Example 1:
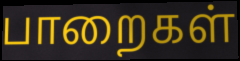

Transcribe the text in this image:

பாறைகள்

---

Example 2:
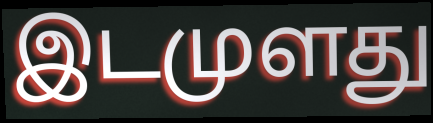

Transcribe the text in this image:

இடமுளது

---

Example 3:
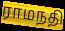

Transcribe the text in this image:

ராமநதி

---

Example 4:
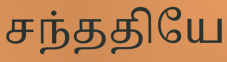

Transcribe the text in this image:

சந்ததியே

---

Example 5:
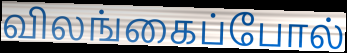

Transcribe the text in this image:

விலங்கைப்போல்